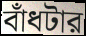
বাঁধটার